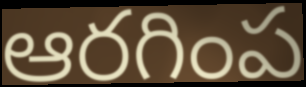
ఆరగింప